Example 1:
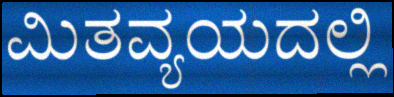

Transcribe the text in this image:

ಮಿತವ್ಯಯದಲ್ಲಿ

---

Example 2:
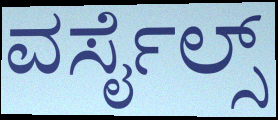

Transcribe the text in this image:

ವರ್ಸೈಲ್ಸ್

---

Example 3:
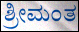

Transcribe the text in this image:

ಶ್ರೀಮಂತ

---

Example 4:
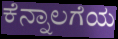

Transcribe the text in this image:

ಕೆನ್ನಾಲಗೆಯ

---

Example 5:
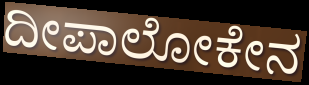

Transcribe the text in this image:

ದೀಪಾಲೋಕೇನ